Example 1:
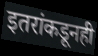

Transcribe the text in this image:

इतरांकडूनही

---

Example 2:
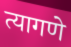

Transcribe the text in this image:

त्यागणे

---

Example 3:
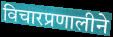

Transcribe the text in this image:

विचारप्रणालीने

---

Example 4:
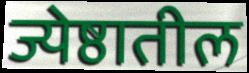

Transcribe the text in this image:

ज्येष्ठातील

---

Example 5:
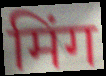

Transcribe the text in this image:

मिंग